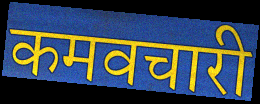
कमवचारी